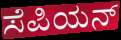
ಸೆಪಿಯನ್